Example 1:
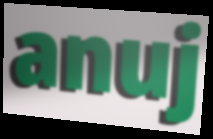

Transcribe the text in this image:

anuj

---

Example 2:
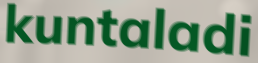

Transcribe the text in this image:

kuntaladi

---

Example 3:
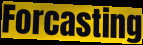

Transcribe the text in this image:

Forcasting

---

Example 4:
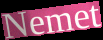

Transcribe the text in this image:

Nemet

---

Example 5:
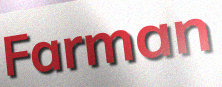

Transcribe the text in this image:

Farman